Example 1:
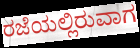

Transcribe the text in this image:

ರಜೆಯಲ್ಲಿರುವಾಗ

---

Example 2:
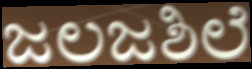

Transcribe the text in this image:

ಜಲಜಶಿಲೆ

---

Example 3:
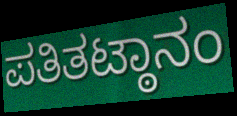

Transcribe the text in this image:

ಪತಿತಟ್ಠಾನಂ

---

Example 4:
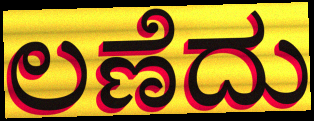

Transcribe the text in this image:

ಲಣೆದು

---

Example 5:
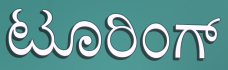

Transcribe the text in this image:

ಟೂರಿಂಗ್